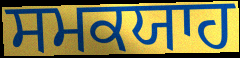
ਸਮਕਯਾਹ